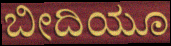
ಬೀದಿಯೂ